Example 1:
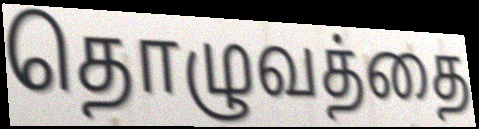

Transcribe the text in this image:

தொழுவத்தை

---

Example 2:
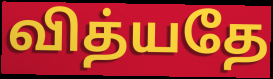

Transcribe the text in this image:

வித்யதே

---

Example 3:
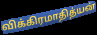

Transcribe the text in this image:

விக்கிரமாதித்யன்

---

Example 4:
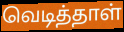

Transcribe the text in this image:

வெடித்தாள்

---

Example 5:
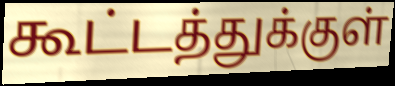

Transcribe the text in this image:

கூட்டத்துக்குள்